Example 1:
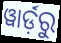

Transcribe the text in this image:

ୱାର୍ଡ଼ରୁ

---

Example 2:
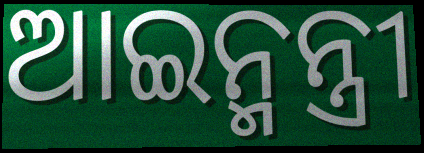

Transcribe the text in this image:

ଆଇନ୍ମନ୍ତ୍ରୀ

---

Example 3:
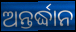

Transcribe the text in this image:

ଅନ୍ତର୍ଦ୍ଧାନ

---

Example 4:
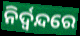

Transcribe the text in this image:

ନିର୍ଦ୍ୱନ୍ଦରେ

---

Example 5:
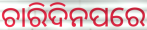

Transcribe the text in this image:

ଚାରିଦିନପରେ